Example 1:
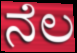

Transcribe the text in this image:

ನೆಲ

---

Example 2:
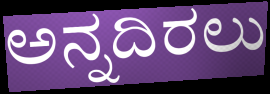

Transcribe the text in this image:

ಅನ್ನದಿರಲು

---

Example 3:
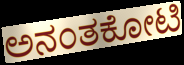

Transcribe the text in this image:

ಅನಂತಕೋಟಿ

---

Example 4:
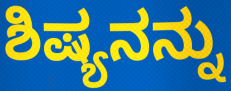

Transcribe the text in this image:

ಶಿಷ್ಯನನ್ನು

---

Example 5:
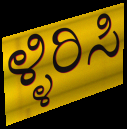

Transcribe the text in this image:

ಳ್ಳಿರಿಸಿ